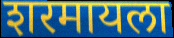
शरमायला